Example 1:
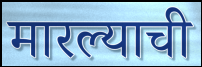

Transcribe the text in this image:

मारल्याची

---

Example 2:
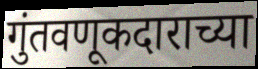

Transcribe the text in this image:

गुंतवणूकदाराच्या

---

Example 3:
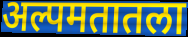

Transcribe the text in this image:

अल्पमतातला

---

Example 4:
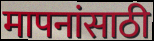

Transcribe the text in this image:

मापनांसाठी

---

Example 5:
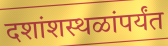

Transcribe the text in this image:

दशांशस्थळांपर्यंत